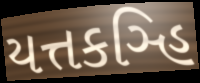
યત્તકઞ્હિ